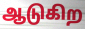
ஆடுகிற